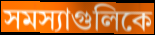
সমস্যাগুলিকে